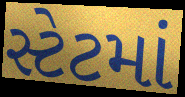
સ્ટેટમાં